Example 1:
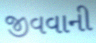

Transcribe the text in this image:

જીવવાની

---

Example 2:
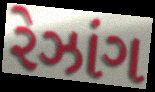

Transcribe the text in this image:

રેઝાંગ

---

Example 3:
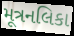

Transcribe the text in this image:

મૂત્રનલિકા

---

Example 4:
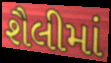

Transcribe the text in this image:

શૈલીમાં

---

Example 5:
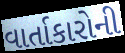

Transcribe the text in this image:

વાર્તાકારોની